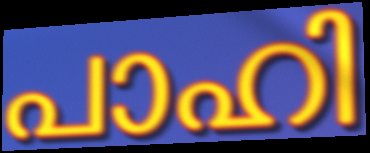
പാഹി